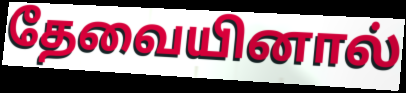
தேவையினால்